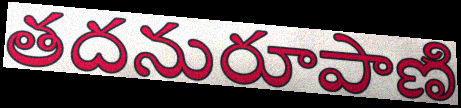
తదనురూపాణి